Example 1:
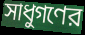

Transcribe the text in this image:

সাধুগণের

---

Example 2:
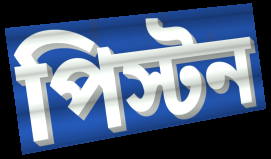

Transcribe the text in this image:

পিস্টন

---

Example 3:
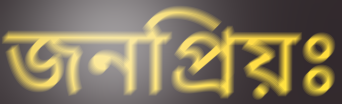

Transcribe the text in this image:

জনপ্রিয়ঃ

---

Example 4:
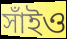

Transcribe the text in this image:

সাঁইও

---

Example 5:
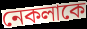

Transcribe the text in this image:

নেকলাকে